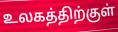
உலகத்திற்குள்